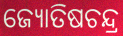
ଜ୍ୟୋତିଷଚନ୍ଦ୍ର